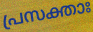
പ്രസക്താഃ